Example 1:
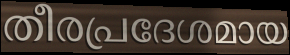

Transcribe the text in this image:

തീരപ്രദേശമായ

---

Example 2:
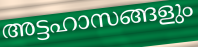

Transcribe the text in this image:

അട്ടഹാസങ്ങളും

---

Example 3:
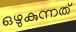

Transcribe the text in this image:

ഒഴുകുന്നത്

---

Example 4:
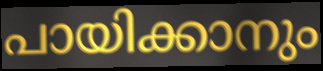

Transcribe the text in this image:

പായിക്കാനും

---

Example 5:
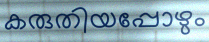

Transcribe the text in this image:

കരുതിയപ്പോഴും